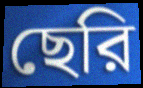
ছেরি